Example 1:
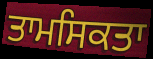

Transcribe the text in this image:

ਤਾਮਸਿਕਤਾ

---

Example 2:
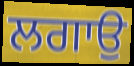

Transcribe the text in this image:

ਲਗਾਉੁ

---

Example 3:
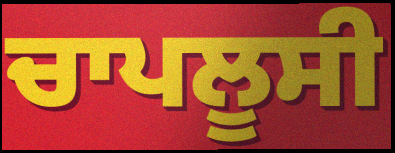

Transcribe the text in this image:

ਚਾਪਲੂਸੀ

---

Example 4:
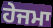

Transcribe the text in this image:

ਹੇਜਮਾ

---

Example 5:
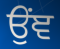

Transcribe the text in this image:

ਉਂਞ